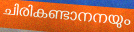
ചിരികണ്ടാനനയും